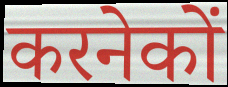
करनेकों